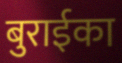
बुराईका